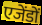
एजेंडों